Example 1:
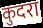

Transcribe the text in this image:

कुदरा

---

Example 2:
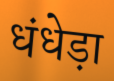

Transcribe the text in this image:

धंधेड़ा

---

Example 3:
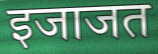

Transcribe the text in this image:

इजाजत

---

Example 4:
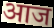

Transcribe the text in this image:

आज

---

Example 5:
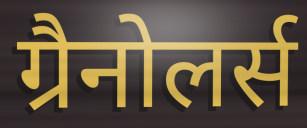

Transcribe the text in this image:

ग्रैनोलर्स